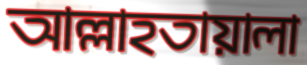
আল্লাহতায়ালা